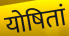
योषितां